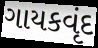
ગાયકવૃંદ